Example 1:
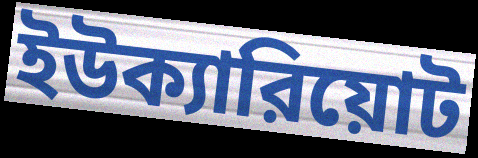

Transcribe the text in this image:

ইউক্যারিয়োট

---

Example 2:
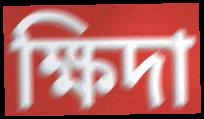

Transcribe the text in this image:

ক্ষিদা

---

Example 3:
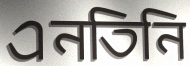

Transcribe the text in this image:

এনতিনি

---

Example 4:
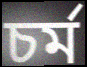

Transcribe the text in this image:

চর্ম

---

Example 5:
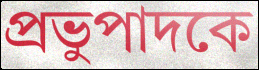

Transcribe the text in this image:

প্রভুপাদকে